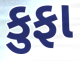
કુફા